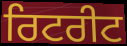
ਰਿਟਰੀਟ